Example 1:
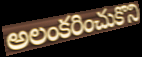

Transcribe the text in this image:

అలంకరించుకొని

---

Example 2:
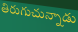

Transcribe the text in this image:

తిరుగుచున్నాడు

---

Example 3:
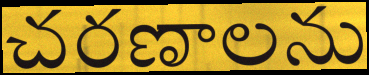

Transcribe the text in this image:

చరణాలను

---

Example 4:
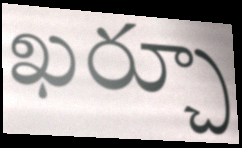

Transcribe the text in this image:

ఖర్చూ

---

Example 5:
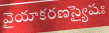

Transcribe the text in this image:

వైయాకరణస్యైషః